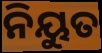
ନିୟୁତ